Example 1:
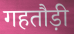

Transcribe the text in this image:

गहतौड़ी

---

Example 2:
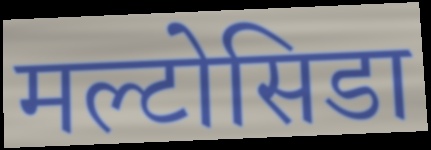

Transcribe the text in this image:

मल्टोसिडा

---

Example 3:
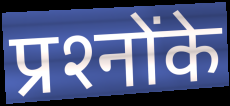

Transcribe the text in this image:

प्रश्नोंके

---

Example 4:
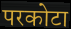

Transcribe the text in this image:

परकोटा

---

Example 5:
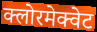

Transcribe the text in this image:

क्लोरमेक्वेट